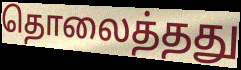
தொலைத்தது